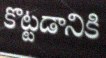
కొట్టడానికి